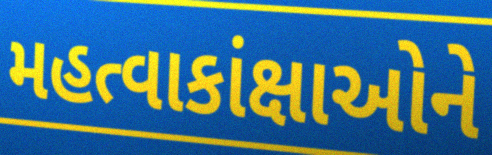
મહત્વાકાંક્ષાઓને